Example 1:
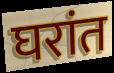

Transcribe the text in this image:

घरांत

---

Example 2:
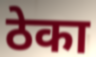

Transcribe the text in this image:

ठेका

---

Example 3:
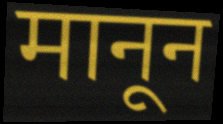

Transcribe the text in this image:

मानून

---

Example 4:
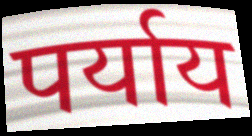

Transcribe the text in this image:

पर्याय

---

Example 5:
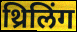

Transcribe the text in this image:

थ्रिलिंग